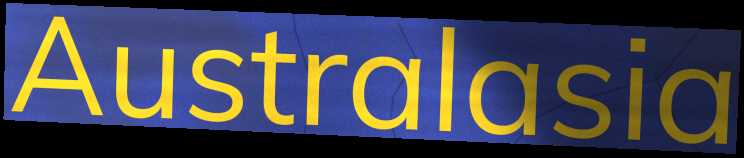
Australasia